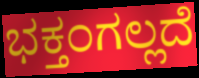
ಭಕ್ತಂಗಲ್ಲದೆ